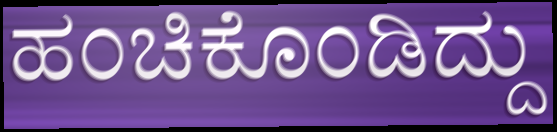
ಹಂಚಿಕೊಂಡಿದ್ದು